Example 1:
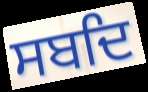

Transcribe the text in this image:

ਸਬਦਿ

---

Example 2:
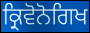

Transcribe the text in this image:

ਕ੍ਰਿਵੋਨੋਗਿਖ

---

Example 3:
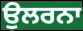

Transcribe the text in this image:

ਉਲਰਨਾ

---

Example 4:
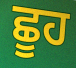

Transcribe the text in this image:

ਛੂਹ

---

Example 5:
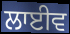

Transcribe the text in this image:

ਲਾਈਵ